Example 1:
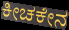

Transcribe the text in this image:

ಕೀಚಕೇನ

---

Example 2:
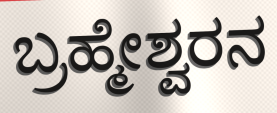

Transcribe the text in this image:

ಬ್ರಹ್ಮೇಶ್ವರನ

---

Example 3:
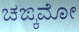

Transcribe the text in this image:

ಚಙ್ಕಮೋ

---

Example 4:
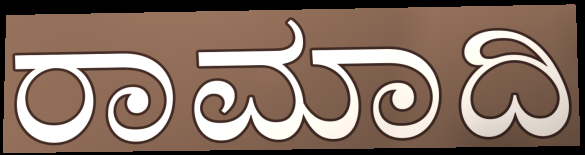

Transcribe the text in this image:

ರಾಮಾದಿ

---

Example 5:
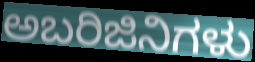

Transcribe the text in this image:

ಅಬರಿಜಿನಿಗಳು